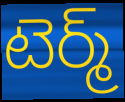
టెర్మ్